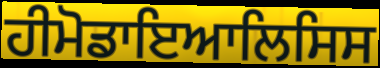
ਹੀਮੋਡਾਇਆਲਿਸਿਸ